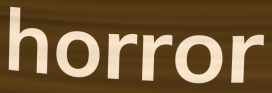
horror